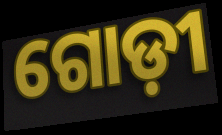
ଗୋଡ଼ୀ